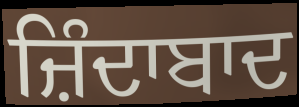
ਜ਼ਿੰਦਾਬਾਦ